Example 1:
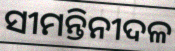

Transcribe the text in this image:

ସୀମନ୍ତିନୀଦଳ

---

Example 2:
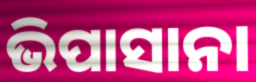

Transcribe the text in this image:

ଭିପାସାନା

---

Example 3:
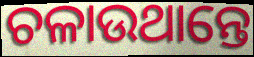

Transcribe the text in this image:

ଚଳାଉଥାନ୍ତେ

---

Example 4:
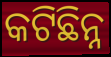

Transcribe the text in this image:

କଟିଛିନ୍ନ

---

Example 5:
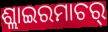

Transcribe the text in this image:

ଶ୍ଲାଇରମାଚର୍